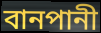
বানপানী